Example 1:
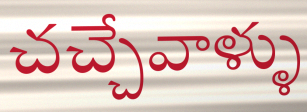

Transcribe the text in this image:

చచ్చేవాళ్ళు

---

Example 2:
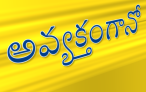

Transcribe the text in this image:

అవ్యక్తంగానో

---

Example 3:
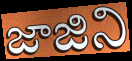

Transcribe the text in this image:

జాజిని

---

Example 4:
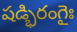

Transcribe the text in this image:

షడ్భిరంగైః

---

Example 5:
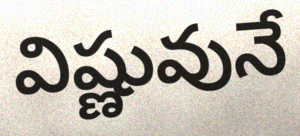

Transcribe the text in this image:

విష్ణువునే